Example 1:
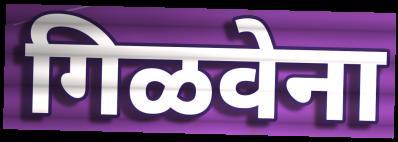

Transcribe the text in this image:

गिळवेना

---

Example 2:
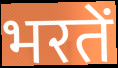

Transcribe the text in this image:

भरतें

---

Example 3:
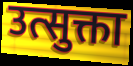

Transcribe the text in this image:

उत्सुक्ता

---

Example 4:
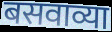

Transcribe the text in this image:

बसवाव्या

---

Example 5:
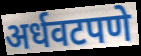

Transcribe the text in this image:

अर्धवटपणे